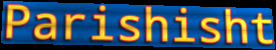
Parishisht